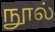
நூல்